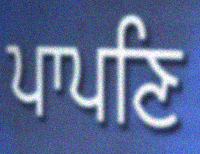
ਪਾਪਣਿ